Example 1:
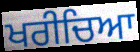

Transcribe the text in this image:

ਖਰੀਚਿਆ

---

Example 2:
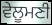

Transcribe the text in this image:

ਵੇਲੂਮਣੀ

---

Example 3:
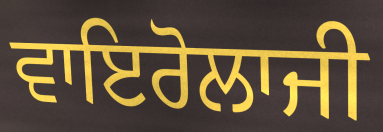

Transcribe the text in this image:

ਵਾਇਰੋਲਾਜੀ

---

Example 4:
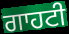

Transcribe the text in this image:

ਗਾਹਟੀ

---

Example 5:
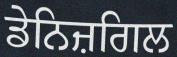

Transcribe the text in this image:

ਡੇਨਿਜ਼ਗਿਲ